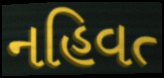
નહિવત્‍